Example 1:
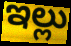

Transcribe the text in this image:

ఇల్లు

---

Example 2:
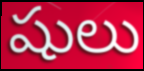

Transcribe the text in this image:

షులు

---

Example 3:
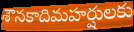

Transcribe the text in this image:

శౌనకాదిమహర్షులకు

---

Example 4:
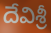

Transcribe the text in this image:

దేవిశ్రీ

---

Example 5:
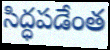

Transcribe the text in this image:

సిద్ధపడేంత